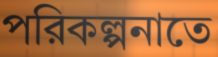
পরিকল্পনাতে